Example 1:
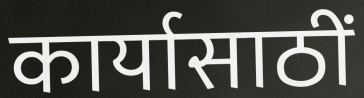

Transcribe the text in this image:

कार्यासाठीं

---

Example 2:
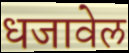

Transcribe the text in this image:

धजावेल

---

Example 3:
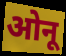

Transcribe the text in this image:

ओनू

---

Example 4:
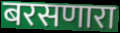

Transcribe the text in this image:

बरसणारा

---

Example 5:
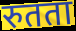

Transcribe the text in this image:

रुतता